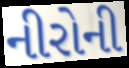
નીરોની